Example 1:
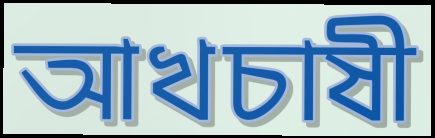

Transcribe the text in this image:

আখচাষী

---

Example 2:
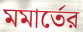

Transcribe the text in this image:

মমার্তের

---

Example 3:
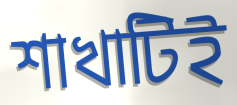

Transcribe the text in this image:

শাখাটিই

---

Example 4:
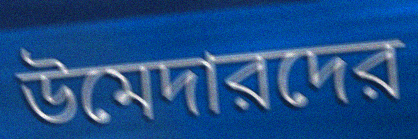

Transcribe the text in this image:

উমেদারদের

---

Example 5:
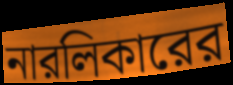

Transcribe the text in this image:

নারলিকারের